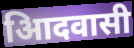
आिदवासी